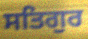
ਸਤਿਗੁਰ